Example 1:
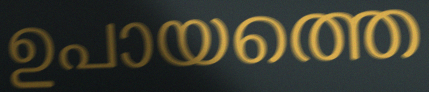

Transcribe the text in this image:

ഉപായത്തെ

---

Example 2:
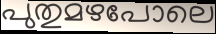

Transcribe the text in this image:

പുതുമഴപോലെ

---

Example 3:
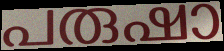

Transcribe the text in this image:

പരുഷാ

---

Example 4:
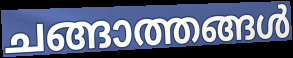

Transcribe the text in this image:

ചങ്ങാത്തങ്ങൾ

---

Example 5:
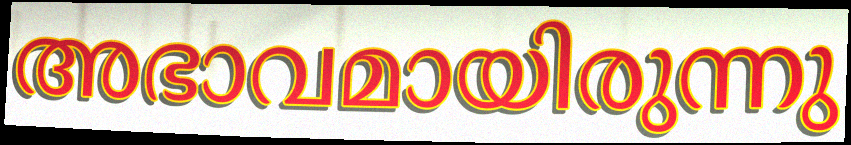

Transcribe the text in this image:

അഭാവമായിരുന്നു